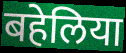
बहेलिया